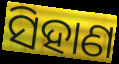
ସିହାଣ